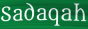
Sadaqah